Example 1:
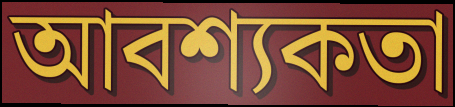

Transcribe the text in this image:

আবশ্যকতা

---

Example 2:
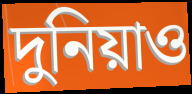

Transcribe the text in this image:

দুনিয়াও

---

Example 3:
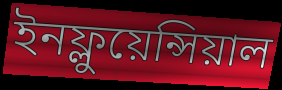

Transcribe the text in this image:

ইনফ্লুয়েন্সিয়াল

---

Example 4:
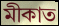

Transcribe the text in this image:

মীকাত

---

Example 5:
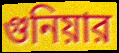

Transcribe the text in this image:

গুনিয়ার